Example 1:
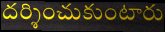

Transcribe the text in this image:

దర్శించుకుంటారు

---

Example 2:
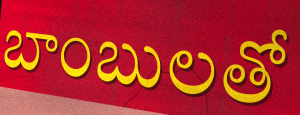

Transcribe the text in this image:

బాంబులతో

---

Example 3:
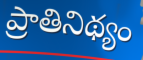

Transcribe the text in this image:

ప్రాతినిథ్యం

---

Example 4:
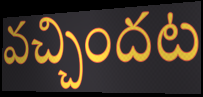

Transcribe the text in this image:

వచ్చిందట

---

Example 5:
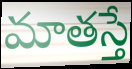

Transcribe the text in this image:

మాతస్తే